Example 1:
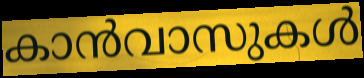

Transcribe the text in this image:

കാൻവാസുകൾ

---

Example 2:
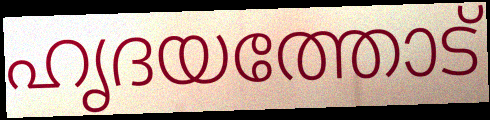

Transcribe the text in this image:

ഹൃദയത്തോട്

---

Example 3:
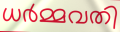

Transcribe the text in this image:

ധർമ്മവതി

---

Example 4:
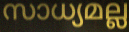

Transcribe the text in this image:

സാധ്യമല്ല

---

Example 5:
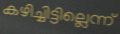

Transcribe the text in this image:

കഴിച്ചിട്ടില്ലെന്ന്